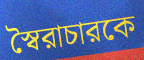
স্বৈরাচারকে